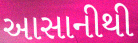
આસાનીથી